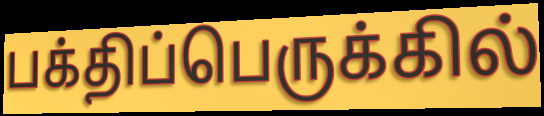
பக்திப்பெருக்கில்